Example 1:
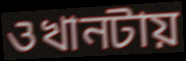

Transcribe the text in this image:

ওখানটায়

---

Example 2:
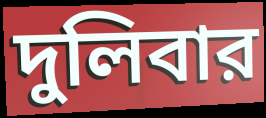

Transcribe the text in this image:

দুলিবার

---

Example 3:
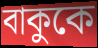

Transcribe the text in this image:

বাকুকে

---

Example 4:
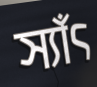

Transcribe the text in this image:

স্যাঁৎ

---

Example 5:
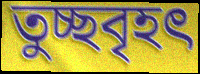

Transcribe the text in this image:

তুচ্ছবৃহৎ